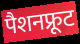
पैशनफ्रूट